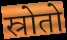
स्रोतो